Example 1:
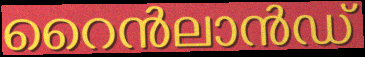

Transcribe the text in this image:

റൈൻലാൻഡ്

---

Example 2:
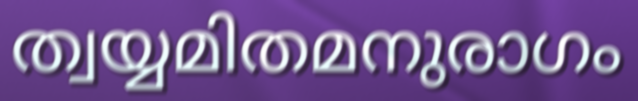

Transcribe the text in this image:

ത്വയ്യമിതമനുരാഗം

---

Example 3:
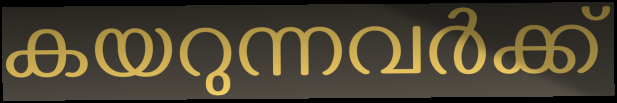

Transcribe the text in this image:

കയറുന്നവർക്ക്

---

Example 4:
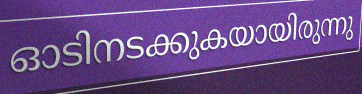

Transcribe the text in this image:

ഓടിനടക്കുകയായിരുന്നു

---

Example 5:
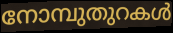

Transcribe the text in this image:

നോമ്പുതുറകൾ